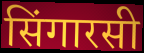
सिंगारसी